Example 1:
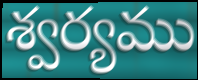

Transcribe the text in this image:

శ్వర్యము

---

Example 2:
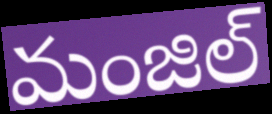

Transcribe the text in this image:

మంజిల్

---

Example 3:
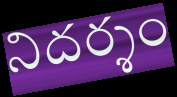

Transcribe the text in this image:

నిదర్శం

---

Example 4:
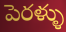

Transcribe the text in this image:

పెరళ్ళు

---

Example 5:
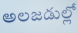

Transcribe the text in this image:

అలజడుల్లో